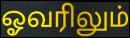
ஓவரிலும்